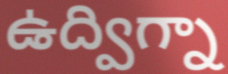
ఉద్విగ్నా